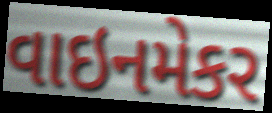
વાઇનમેકર